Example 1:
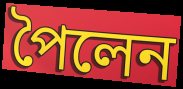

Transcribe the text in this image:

পৈলেন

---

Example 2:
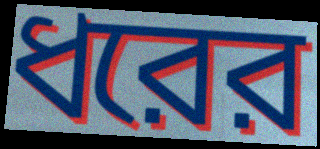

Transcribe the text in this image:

ধরের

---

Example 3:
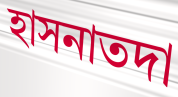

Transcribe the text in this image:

হাসনাতদা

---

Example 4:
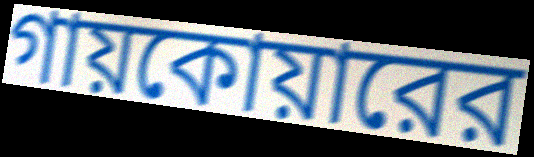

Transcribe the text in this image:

গায়কোয়ারের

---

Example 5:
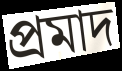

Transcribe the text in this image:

প্রমাদ